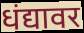
धंद्यावर